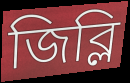
জিব্লি